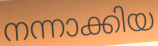
നന്നാക്കിയ